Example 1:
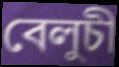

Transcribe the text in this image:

বেলুচী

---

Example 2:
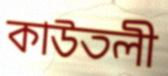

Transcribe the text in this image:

কাউতলী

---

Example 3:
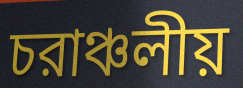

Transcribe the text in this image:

চরাঞ্চলীয়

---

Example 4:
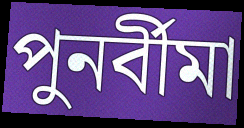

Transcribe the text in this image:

পুনর্বীমা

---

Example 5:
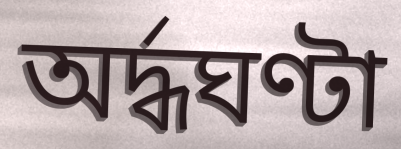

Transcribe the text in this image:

অর্দ্ধঘণ্টা